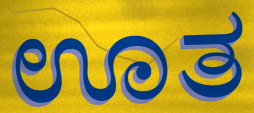
ಊತ